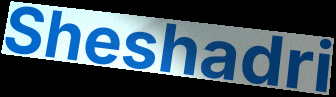
Sheshadri